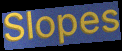
Slopes